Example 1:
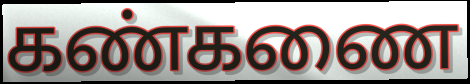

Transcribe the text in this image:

கண்கணை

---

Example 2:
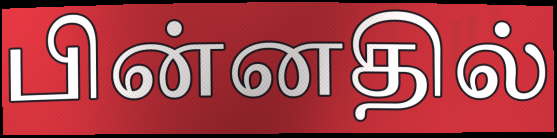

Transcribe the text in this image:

பின்னதில்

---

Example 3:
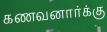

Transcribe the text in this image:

கணவனார்க்கு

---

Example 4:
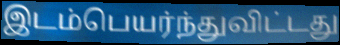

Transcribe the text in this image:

இடம்பெயர்ந்துவிட்டது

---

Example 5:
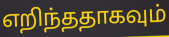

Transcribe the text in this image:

எறிந்ததாகவும்